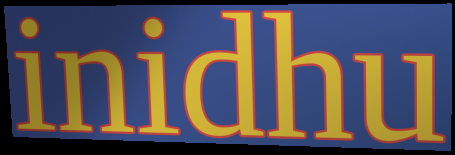
inidhu